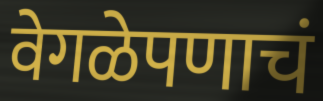
वेगळेपणाचं